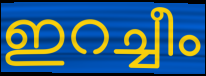
ഇറച്ചീം